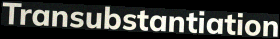
Transubstantiation